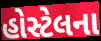
હોસ્ટેલના